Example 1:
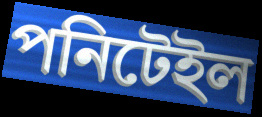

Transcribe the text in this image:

পনিটেইল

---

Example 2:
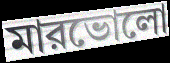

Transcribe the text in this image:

মারভোলো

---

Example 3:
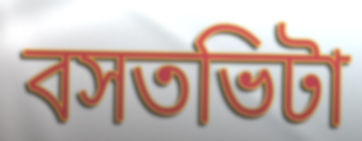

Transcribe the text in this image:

বসতভিটা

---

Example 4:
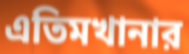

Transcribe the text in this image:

এতিমখানার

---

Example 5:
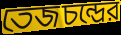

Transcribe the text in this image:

তেজচন্দ্রের